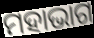
ମହାଭାଗ